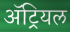
ॲट्रियल